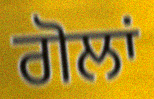
ਗੋਲਾਂ